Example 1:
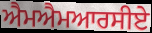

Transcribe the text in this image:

ਐਮਐਮਆਰਸੀਏ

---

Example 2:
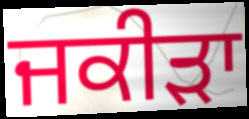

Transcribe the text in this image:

ਜਕੀੜਾ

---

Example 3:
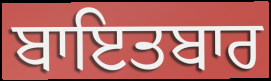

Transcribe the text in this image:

ਬਾਇਤਬਾਰ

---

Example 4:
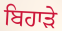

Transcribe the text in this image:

ਬਿਹਾੜੇ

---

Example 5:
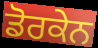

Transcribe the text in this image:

ਡੋਰਕੇਨ